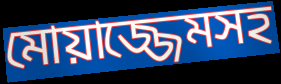
মোয়াজ্জেমসহ